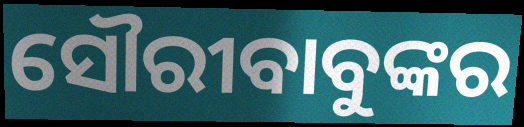
ସୌରୀବାବୁଙ୍କର